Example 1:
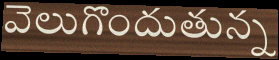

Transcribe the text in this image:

వెలుగొందుతున్న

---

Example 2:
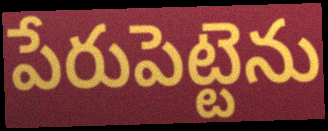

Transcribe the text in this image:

పేరుపెట్టెను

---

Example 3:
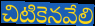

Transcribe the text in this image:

చిటికెనవేలి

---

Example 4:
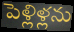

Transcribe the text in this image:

పెళ్లిళ్లను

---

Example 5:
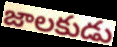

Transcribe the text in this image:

జాలకుడు